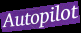
Autopilot